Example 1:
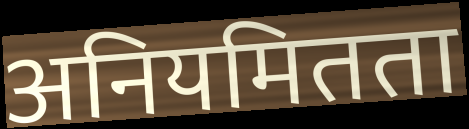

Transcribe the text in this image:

अनियमितता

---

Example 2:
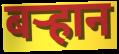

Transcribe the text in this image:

बऱ्हान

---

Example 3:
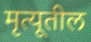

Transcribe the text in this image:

मृत्यूतील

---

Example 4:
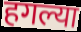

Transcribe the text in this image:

हगल्या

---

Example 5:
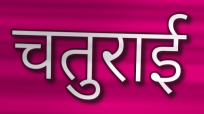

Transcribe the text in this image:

चतुराई